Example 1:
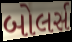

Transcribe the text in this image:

બોલર્સ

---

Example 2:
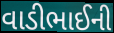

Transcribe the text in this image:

વાડીભાઈની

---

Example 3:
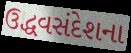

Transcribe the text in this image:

ઉદ્ધવસંદેશના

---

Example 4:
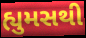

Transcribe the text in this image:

હ્યુમસથી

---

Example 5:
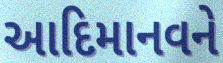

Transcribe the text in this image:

આદિમાનવને